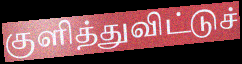
குளித்துவிட்டுச்